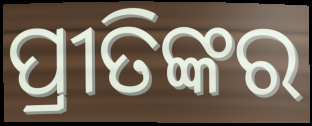
ପ୍ରୀତିଙ୍କର